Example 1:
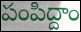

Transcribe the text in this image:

పంపిద్దాం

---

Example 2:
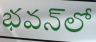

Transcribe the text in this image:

భవన్‌లో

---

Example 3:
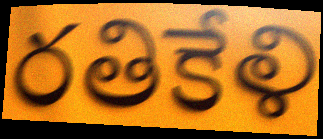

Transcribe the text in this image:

రతికేళి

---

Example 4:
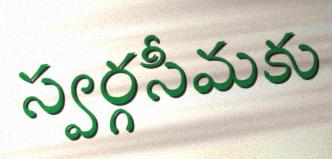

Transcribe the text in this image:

స్వర్గసీమకు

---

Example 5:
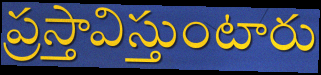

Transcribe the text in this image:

ప్రస్తావిస్తుంటారు